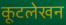
कूटलेखन